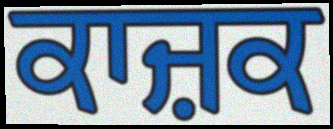
ਕਾਜ਼ਕ